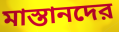
মাস্তানদের